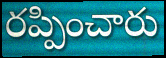
రప్పించారు